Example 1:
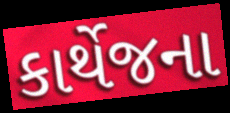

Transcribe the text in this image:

કાર્થેજના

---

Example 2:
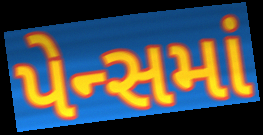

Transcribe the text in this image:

પેન્સમાં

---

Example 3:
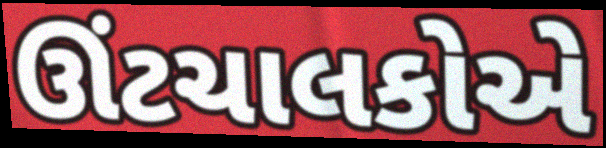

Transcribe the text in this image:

ઊંટચાલકોએ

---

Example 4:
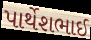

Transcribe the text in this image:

પાર્થેશભાઈ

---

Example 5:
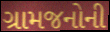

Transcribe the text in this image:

ગ્રામજનોની